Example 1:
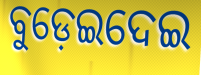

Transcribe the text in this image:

ବୁଡ଼େଇଦେଇ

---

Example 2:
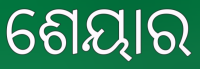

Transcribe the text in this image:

ଶେୟାର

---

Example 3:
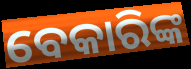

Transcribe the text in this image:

ବେକାରିଙ୍କ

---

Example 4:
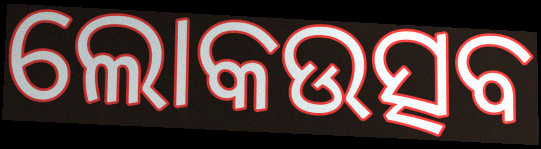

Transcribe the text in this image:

ଲୋକଉତ୍ସବ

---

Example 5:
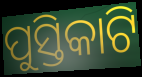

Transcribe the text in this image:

ପୁସ୍ତିକାଟି